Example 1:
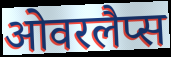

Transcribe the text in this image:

ओवरलैप्स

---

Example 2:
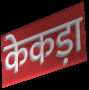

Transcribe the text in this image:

केकड़ा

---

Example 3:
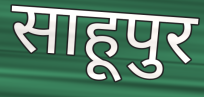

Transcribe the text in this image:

साहूपुर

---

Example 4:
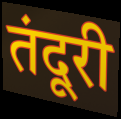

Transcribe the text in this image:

तंदूरी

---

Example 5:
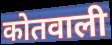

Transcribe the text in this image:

कोतवाली